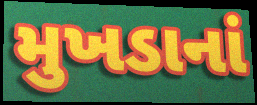
મુખડાનાં